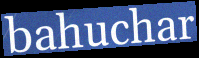
bahuchar